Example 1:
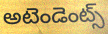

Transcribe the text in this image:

అటెండెంట్స్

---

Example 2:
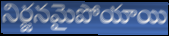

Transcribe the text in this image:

నిర్జనమైపోయాయి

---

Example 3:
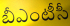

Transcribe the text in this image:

బీఎంటీసీ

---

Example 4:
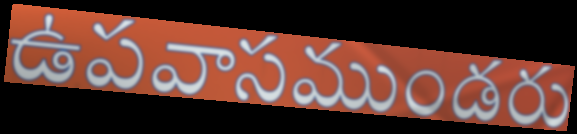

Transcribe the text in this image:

ఉపవాసముండరు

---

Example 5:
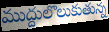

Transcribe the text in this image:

ముద్దులొలుకుతున్న